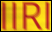
IIRI